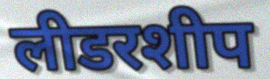
लीडरशीप